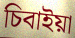
চিবাইয়া